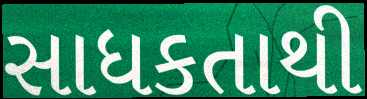
સાધકતાથી